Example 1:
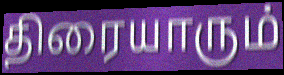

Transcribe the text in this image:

திரையாரும்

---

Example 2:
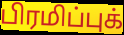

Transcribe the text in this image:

பிரமிப்புக்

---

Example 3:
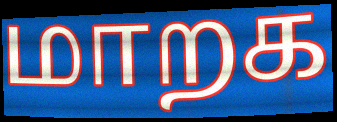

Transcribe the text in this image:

மாறக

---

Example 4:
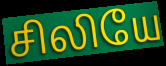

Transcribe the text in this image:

சிலியே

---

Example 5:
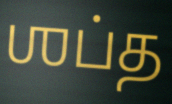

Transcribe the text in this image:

ஶப்த